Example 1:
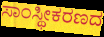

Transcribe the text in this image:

ಸಾಂಸ್ಥೀಕರಣದ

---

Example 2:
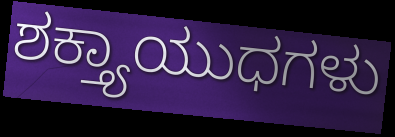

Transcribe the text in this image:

ಶಕ್ತ್ಯಾಯುಧಗಳು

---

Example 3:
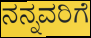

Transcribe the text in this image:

ನನ್ನವರಿಗೆ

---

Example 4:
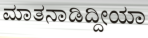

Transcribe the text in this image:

ಮಾತನಾಡಿದ್ದೀಯಾ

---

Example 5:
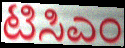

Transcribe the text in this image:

ಟಿಸಿಎಂ